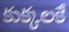
కుక్కలకే